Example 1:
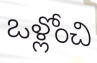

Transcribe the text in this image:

ఒళ్లోంచి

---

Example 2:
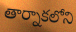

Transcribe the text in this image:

తార్నాకలోని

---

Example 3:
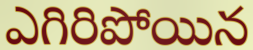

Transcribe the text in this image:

ఎగిరిపోయిన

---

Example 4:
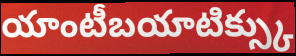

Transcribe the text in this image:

యాంటీబయాటిక్స్కు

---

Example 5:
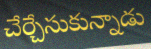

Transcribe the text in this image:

చేర్చేసుకున్నాడు